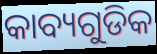
କାବ୍ୟଗୁଡିକ